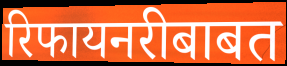
रिफायनरीबाबत